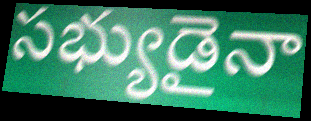
సభ్యుడైనా